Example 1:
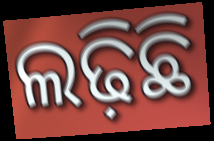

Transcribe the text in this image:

ଲଢ଼ିଛି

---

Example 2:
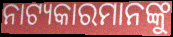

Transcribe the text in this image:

ନାଟ୍ଯକାରମାନଙ୍କୁ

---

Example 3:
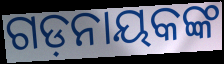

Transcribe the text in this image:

ଗଡ଼ନାୟକଙ୍କ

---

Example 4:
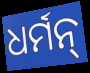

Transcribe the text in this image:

ଧର୍ମନ୍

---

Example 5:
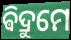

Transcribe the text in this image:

ଵିଦ୍ରୁମେ